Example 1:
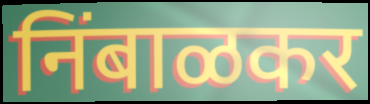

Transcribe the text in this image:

निंबाळकर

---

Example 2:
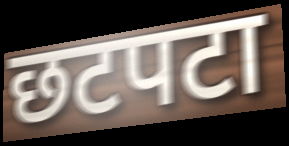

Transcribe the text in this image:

छटपटा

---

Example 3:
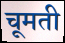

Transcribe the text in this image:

चूमती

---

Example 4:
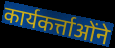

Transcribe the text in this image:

कार्यकर्त्ताओंने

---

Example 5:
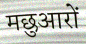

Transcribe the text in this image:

मछुआरों